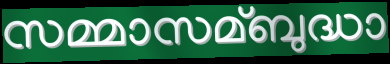
സമ്മാസമ്ബുദ്ധാ